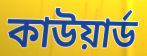
কাউয়ার্ড